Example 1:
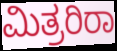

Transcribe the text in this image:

ಮಿತ್ರರಿರಾ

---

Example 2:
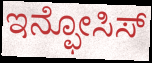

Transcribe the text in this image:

ಇನ್ಫೋಸಿಸ್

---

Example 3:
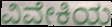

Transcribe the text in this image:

ವಿವೇಕಿಯ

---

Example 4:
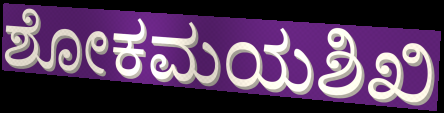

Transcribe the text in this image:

ಶೋಕಮಯಶಿಖಿ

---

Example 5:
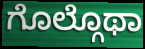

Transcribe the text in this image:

ಗೊಲ್ಗೊಥಾ